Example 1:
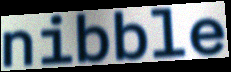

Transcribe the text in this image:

nibble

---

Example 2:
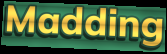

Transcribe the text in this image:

Madding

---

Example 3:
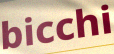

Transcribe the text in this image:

bicchi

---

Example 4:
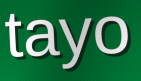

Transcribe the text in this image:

tayo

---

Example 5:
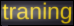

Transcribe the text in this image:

traning